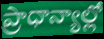
ప్రాధాన్యాల్లో